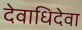
देवाधिदेवा